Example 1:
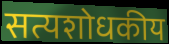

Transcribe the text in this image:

सत्यशोधकीय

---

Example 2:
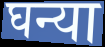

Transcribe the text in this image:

घन्या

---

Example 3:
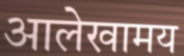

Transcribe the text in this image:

आलेखामय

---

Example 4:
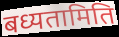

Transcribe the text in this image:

बध्यतामिति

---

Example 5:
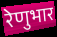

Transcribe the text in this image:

रेणुभार